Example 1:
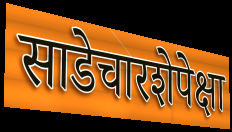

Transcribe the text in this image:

साडेचारशेपेक्षा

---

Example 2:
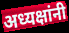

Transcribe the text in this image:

अध्यक्षांनी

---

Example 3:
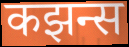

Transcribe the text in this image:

कझन्स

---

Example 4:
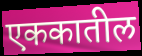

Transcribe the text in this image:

एककातील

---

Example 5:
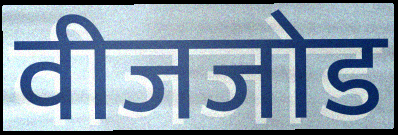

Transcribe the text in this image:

वीजजोड